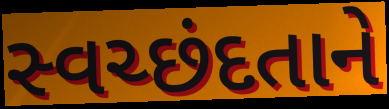
સ્વચ્છંદતાને